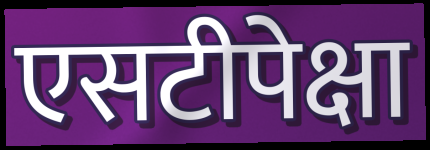
एसटीपेक्षा